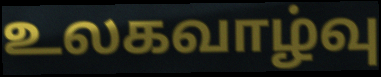
உலகவாழ்வு